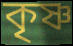
কৃষ্ণ